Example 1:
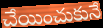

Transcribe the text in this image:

చేయించుకునే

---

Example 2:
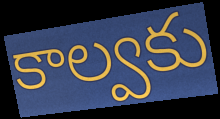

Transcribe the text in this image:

కాల్వకు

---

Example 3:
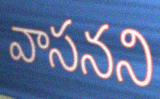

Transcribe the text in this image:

వాసనని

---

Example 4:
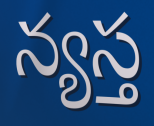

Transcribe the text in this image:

న్యస్త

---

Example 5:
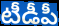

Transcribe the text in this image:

టీడీపీ